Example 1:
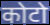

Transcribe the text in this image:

कोटो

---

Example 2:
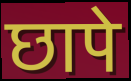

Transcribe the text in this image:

छापे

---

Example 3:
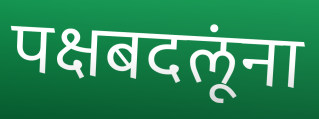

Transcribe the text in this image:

पक्षबदलूंना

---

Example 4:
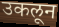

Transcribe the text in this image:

उकलून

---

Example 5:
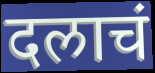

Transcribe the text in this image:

दलाचं